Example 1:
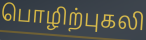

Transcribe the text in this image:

பொழிற்புகலி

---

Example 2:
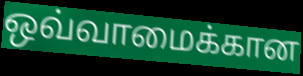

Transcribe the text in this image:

ஒவ்வாமைக்கான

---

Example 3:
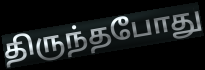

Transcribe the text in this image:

திருந்தபோது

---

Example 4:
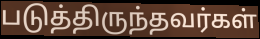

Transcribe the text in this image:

படுத்திருந்தவர்கள்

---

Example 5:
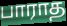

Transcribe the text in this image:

பாராத